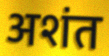
अशंत